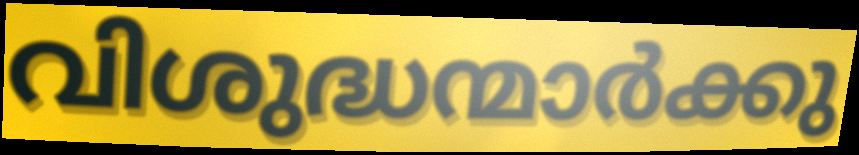
വിശുദ്ധന്മാർക്കു